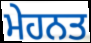
ਮੇਹਨਤ